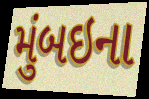
મુંબઇના